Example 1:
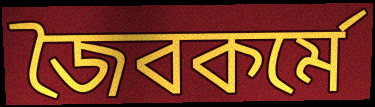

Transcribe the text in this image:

জৈবকর্মে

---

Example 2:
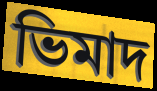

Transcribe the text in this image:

ভিমাদ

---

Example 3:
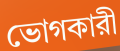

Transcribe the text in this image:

ভোগকারী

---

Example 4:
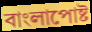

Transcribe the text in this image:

বাংলাপোষ্ট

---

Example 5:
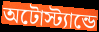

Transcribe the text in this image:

অটোস্ট্যান্ডে